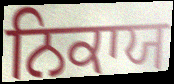
ਨਿਕਾਯ